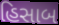
હિસાબ